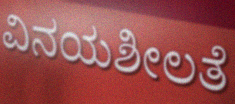
ವಿನಯಶೀಲತೆ